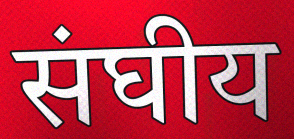
संघीय